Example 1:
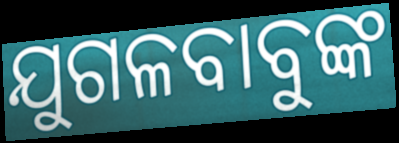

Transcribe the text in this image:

ଯୁଗଳବାବୁଙ୍କ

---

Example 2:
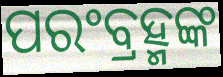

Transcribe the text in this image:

ପରଂବ୍ରହ୍ମଙ୍କ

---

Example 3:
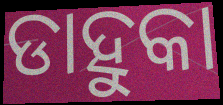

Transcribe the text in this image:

ଡାହୁକା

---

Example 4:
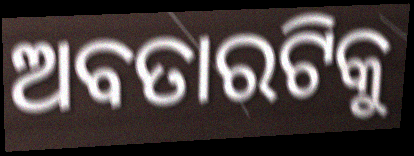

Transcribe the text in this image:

ଅବତାରଟିକୁ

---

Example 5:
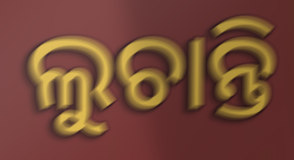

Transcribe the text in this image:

ଲୁଚାନ୍ତି